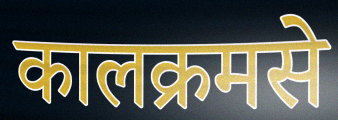
कालक्रमसे